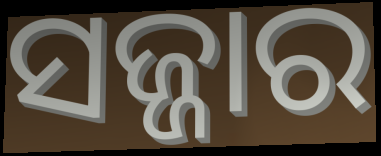
ସଜ୍ଜାର